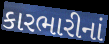
કારભારીનાં